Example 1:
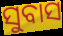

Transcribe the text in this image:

ସୁବାସ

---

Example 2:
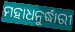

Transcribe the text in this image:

ମହାଧନୁର୍ଦ୍ଧାରୀ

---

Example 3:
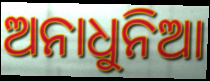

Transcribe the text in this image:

ଅନାଧୁନିଆ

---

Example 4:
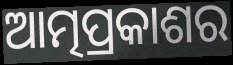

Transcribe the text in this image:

ଆତ୍ମପ୍ରକାଶର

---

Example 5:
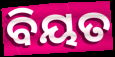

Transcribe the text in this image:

ବିୟତ